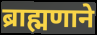
ब्राह्मणाने